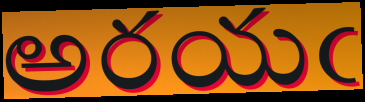
అరయఁ